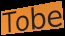
Tobe